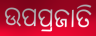
ଉପପ୍ରଜାତି